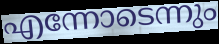
എന്നോടെന്നും